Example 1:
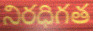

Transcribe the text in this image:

నిరధిగత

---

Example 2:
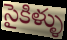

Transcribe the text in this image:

సైకిళ్ళు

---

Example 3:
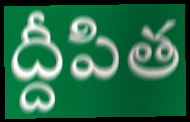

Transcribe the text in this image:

ద్దీపిత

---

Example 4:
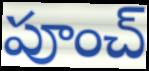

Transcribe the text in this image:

పూంచ్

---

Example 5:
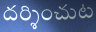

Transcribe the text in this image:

దర్శించుట